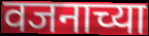
वजनाच्या